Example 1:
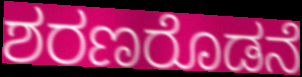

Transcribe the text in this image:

ಶರಣರೊಡನೆ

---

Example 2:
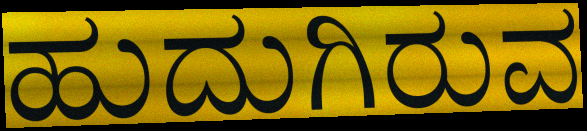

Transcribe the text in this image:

ಹುದುಗಿರುವ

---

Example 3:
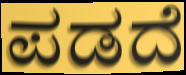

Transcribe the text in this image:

ಪಡದೆ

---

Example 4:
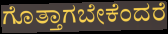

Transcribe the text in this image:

ಗೊತ್ತಾಗಬೇಕೆಂದರೆ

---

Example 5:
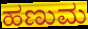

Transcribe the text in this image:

ಹಣುಮ